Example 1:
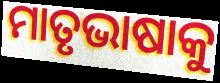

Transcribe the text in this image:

ମାତୃଭାଷାକୁ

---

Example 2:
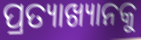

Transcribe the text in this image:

ପ୍ରତ୍ୟାଖ୍ୟାନକୁ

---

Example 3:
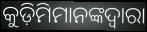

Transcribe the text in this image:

କୁଡ଼ିମିମାନଙ୍କଦ୍ୱାରା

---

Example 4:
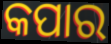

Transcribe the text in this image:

କପାର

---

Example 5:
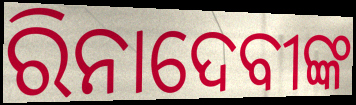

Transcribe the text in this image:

ରିନାଦେବୀଙ୍କ